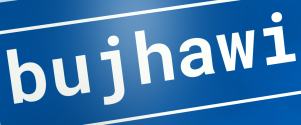
bujhawi